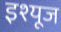
इश्यूज